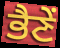
ਭੈਣੇਂ